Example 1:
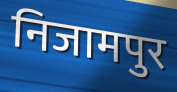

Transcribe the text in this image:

निजामपुर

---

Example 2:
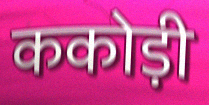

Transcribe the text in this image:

ककोड़ी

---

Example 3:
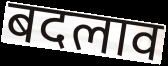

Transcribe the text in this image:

बदलाव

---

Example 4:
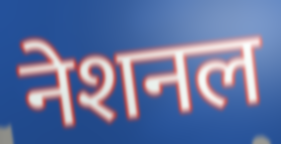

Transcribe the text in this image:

नेशनल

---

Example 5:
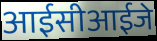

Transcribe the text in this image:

आईसीआईजे